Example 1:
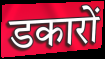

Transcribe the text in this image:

डकारों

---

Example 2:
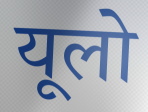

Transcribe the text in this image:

यूलो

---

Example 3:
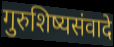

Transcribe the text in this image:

गुरुशिष्यसंवादे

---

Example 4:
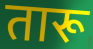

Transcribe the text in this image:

तारू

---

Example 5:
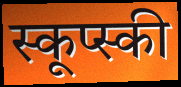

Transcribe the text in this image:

स्कूप्स्की